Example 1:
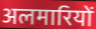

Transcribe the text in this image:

अलमारियों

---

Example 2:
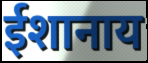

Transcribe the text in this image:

ईशानाय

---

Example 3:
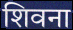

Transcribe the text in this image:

शिवना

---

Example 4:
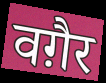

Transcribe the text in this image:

वग़ैर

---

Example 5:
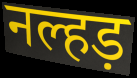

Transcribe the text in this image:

नल्हड़